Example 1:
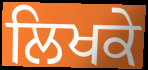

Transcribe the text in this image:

ਲਿਖਕੇ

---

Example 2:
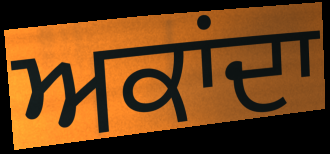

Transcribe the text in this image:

ਅਕਾਂਦਾ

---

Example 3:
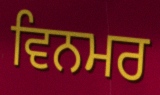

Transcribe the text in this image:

ਵਿਨਮਰ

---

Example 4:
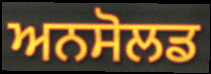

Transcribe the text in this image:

ਅਨਸੋਲਡ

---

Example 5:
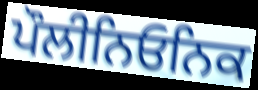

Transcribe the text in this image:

ਪੌਲੀਨਿਓਨਿਕ